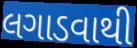
લગાડવાથી